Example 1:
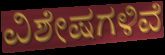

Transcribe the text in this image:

ವಿಶೇಷಗಳಿವೆ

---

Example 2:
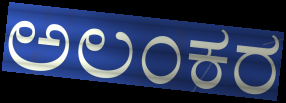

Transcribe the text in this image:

ಅಲಂಕರ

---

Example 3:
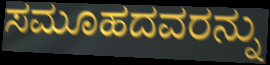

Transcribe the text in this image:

ಸಮೂಹದವರನ್ನು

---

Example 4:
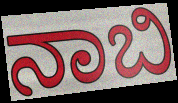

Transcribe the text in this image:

ನಾಬಿ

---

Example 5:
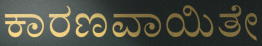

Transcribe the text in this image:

ಕಾರಣವಾಯಿತೇ